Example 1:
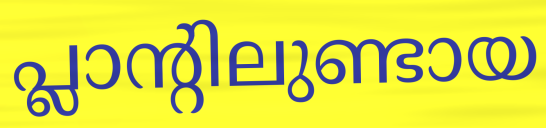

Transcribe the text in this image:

പ്ലാന്റിലുണ്ടായ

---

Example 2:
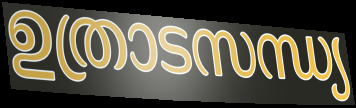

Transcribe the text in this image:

ഉത്രാടസന്ധ്യ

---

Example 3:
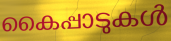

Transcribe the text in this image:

കൈപ്പാടുകൾ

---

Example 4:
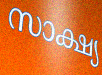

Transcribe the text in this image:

സാക്ഷ്യ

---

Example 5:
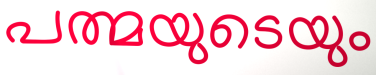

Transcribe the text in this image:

പത്മയുടെയും